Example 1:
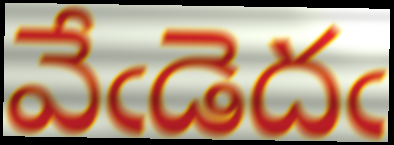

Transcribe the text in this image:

వేఁడెదఁ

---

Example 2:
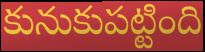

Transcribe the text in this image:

కునుకుపట్టింది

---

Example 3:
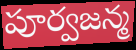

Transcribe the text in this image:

పూర్వజన్మ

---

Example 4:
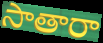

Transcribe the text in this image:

సాతారా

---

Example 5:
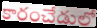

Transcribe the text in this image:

కారంచేడులో